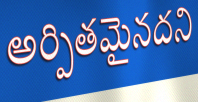
అర్పితమైనదని